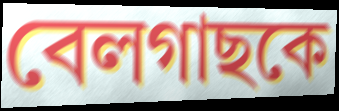
বেলগাছকে